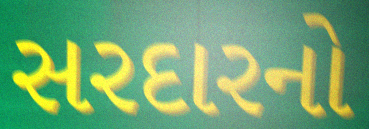
સરદારનો